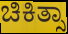
ಚಿಕಿತ್ಸಾ